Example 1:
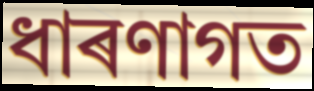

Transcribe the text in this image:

ধাৰণাগত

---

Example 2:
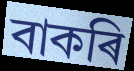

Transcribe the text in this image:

বাকৰি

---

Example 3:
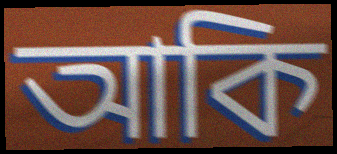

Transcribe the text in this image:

আকি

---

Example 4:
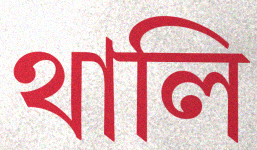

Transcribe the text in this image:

থালি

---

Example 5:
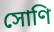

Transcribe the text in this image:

সোণি